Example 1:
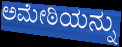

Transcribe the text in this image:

ಅಮೇಠಿಯನ್ನು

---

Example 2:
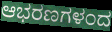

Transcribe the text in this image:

ಆಭರಣಗಳಂದ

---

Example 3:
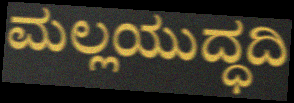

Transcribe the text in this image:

ಮಲ್ಲಯುದ್ಧದಿ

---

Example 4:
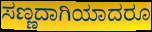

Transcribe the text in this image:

ಸಣ್ಣದಾಗಿಯಾದರೂ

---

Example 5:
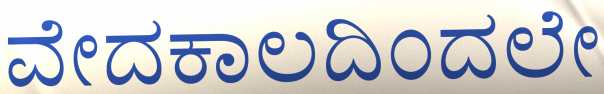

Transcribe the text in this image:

ವೇದಕಾಲದಿಂದಲೇ